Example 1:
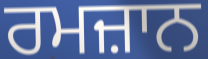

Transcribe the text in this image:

ਰਮਜ਼ਾਨ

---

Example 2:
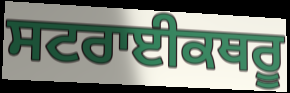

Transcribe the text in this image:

ਸਟਰਾਈਕਥਰੂ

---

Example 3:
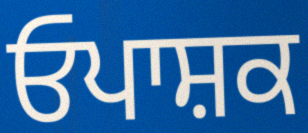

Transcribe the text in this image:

ਓਪਾਸ਼ਕ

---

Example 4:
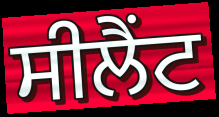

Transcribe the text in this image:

ਸੀਲੈਂਟ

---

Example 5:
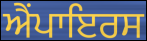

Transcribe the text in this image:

ਐਂਪਾਇਰਸ